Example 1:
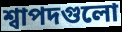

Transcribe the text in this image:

শ্বাপদগুলো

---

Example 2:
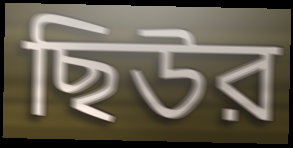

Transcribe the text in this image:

ছিউর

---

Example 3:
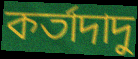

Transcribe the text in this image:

কর্তাদাদু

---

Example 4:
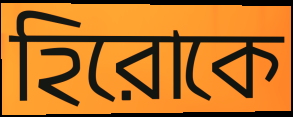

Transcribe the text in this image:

হিরোকে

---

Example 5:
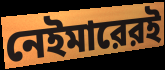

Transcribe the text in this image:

নেইমারেরই